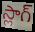
స్లాగ్